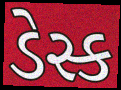
ડેસ્ક